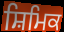
ਸ਼ਿਮਿਕ